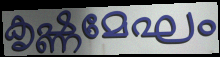
കൃഷ്ണമേഘം